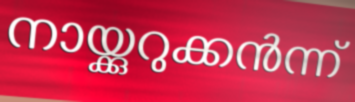
നായ്ക്കുറുക്കൻന്ന്